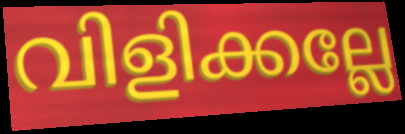
വിളിക്കല്ലേ